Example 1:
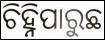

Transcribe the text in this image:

ଚିହ୍ନିପାରୁଛ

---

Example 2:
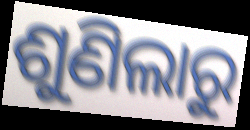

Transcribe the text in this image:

ଶୁଣିଲାରୁ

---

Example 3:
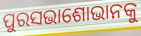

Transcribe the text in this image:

ପୁରସଭାଶୋଭାନକୁ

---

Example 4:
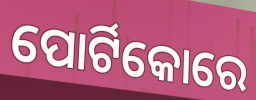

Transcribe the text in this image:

ପୋର୍ଟିକୋରେ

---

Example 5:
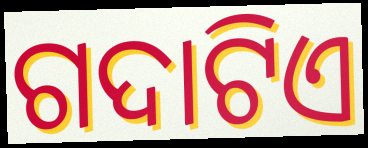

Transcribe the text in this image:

ଗଦାଟିଏ